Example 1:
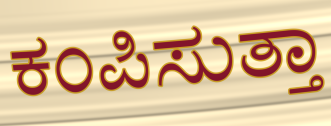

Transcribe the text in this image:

ಕಂಪಿಸುತ್ತಾ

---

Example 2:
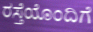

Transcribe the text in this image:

ರಸ್ತೆಯೊಂದಿಗೆ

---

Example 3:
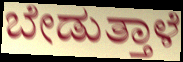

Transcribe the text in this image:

ಬೇಡುತ್ತಾಳೆ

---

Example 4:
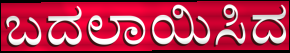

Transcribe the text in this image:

ಬದಲಾಯಿಸಿದ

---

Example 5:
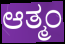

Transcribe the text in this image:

ಆತ್ಮಂ